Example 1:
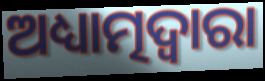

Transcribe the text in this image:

ଅଧ୍ୟାତ୍ମଦ୍ୱାରା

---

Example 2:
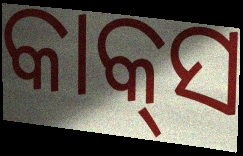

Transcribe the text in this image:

କାକ୍‌ସ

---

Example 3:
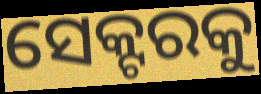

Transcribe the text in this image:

ସେକ୍ଟରକୁ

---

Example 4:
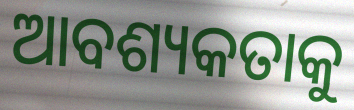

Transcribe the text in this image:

ଆବଶ୍ୟକତାକୁ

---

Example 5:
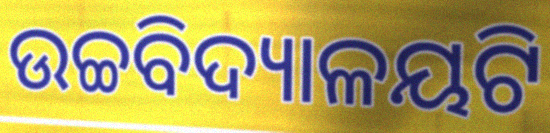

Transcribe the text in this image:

ଉଚ୍ଚବିଦ୍ୟାଳୟଟି